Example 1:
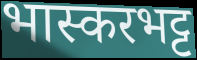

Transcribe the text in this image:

भास्करभट्ट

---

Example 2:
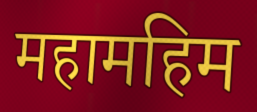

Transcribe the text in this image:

महामहिम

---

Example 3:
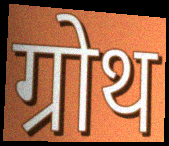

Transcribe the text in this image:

ग्रोथ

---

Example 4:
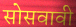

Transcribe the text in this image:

सोसवावी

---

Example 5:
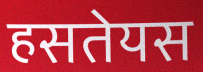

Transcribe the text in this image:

हसतेयस